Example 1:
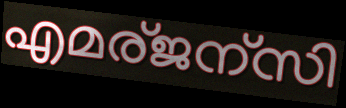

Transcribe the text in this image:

എമര്ജന്സി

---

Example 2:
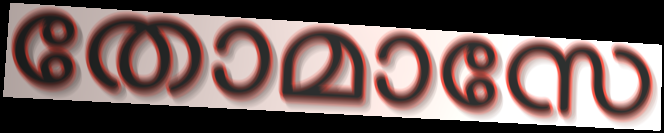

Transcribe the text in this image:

തോമാസേ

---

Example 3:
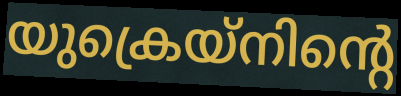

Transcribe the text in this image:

യുക്രെയ്നിന്റെ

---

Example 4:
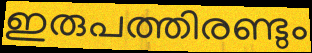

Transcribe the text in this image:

ഇരുപത്തിരണ്ടും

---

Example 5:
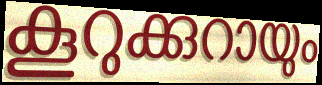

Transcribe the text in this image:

കൂറുക്കുറായും